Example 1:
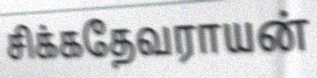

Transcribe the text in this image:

சிக்கதேவராயன்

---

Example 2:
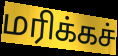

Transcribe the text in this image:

மரிக்கச்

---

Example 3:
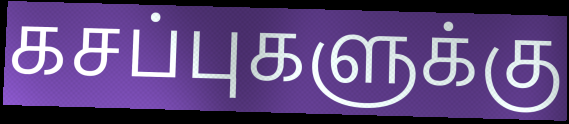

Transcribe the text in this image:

கசப்புகளுக்கு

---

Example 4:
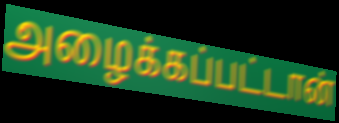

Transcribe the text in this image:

அழைக்கப்பட்டான்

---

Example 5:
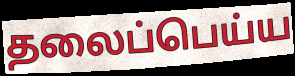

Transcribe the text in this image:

தலைப்பெய்ய